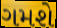
ગમશે